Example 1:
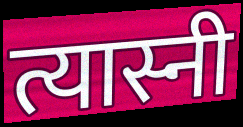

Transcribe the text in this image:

त्यास्नी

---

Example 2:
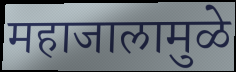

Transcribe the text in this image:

महाजालामुळे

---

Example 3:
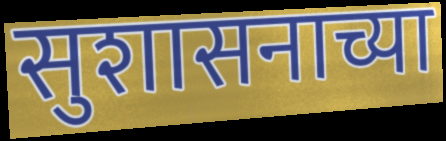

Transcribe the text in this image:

सुशासनाच्या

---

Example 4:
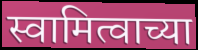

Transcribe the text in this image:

स्वामित्वाच्या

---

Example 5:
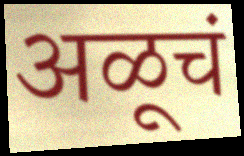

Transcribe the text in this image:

अळूचं